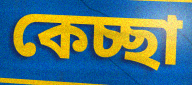
কেচ্ছা